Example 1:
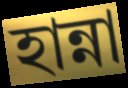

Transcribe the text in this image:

হান্না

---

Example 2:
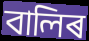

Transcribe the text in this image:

বালিৰ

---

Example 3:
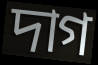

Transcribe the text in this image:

দাগ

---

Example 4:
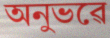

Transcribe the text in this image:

অনুভৱে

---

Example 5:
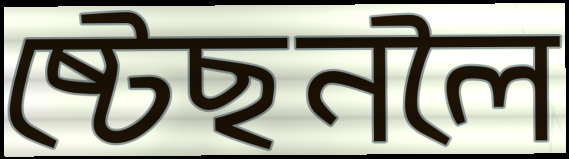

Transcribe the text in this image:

ষ্টেছনলৈ